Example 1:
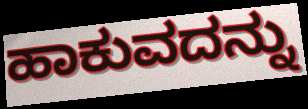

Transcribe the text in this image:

ಹಾಕುವದನ್ನು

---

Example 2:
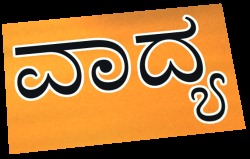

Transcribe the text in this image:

ವಾದ್ಯ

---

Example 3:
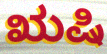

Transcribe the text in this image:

ಋಷಿ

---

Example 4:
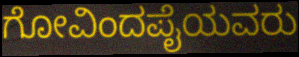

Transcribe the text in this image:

ಗೋವಿಂದಪೈಯವರು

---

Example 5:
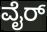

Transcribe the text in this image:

ವೈರ್